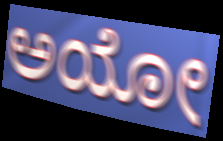
ಅಯೋ